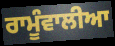
ਰਾਮੂੰਵਾਲੀਆ